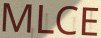
MLCE